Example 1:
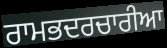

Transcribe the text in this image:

ਰਾਮਭਦਰਚਾਰੀਆ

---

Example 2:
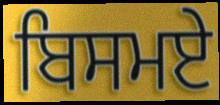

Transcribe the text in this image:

ਬਿਸਮਏ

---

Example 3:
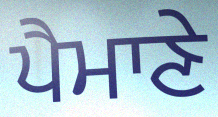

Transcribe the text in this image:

ਪੈਮਾਣੇ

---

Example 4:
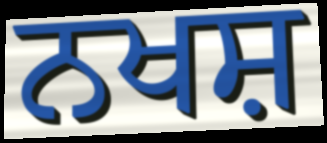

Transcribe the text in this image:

ਨਖਸ਼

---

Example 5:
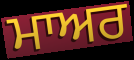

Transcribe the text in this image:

ਮਾਅਰ